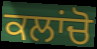
ਕਲਾਂਚੋ